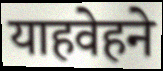
याहवेहने